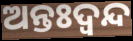
ଅନ୍ତଃଦ୍ବନ୍ଦ